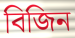
বিজিন